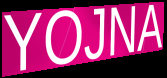
YOJNA